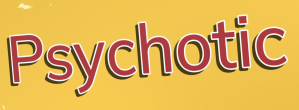
Psychotic